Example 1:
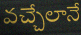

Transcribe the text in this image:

వచ్చేలానే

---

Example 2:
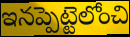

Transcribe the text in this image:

ఇనప్పెట్టెలోంచి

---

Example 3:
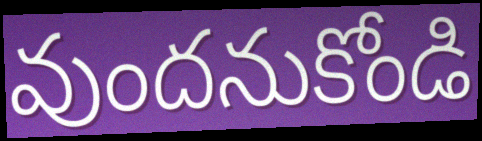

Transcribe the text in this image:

వుందనుకోండి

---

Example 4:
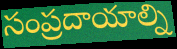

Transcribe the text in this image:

సంప్రదాయాల్ని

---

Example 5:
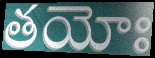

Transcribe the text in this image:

తయోః